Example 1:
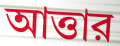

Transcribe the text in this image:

আত্তার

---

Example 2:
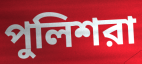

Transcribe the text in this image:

পুলিশরা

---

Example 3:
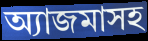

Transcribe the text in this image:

অ্যাজমাসহ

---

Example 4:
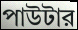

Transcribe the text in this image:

পাউটার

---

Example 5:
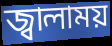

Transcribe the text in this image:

জ্বালাময়